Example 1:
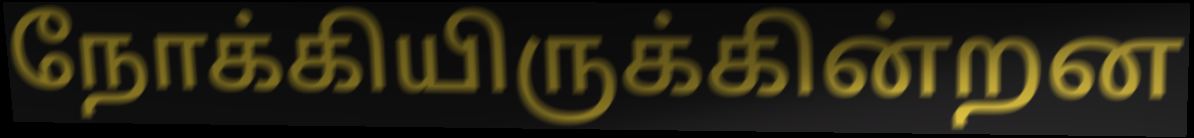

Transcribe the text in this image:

நோக்கியிருக்கின்றன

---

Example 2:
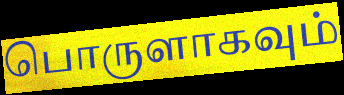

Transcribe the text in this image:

பொருளாகவும்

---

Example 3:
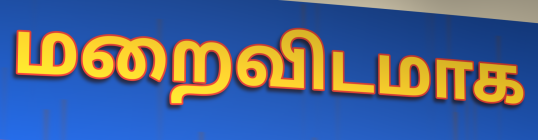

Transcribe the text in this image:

மறைவிடமாக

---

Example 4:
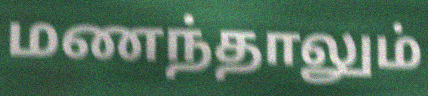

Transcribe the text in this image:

மணந்தாலும்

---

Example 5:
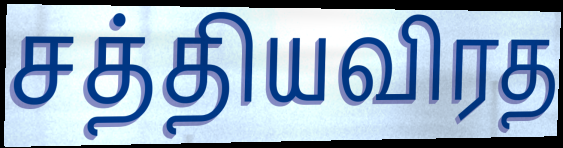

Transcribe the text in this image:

சத்தியவிரத